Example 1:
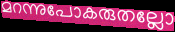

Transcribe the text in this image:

മറന്നുപോകരുതല്ലോ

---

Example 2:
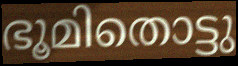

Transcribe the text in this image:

ഭൂമിതൊട്ടു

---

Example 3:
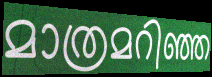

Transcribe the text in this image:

മാത്രമറിഞ്ഞ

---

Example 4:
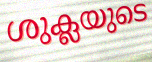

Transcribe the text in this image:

ശുക്ലയുടെ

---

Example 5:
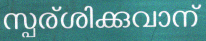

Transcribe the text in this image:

സ്പര്ശിക്കുവാന്